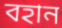
বহান